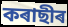
কৰাছীৰ